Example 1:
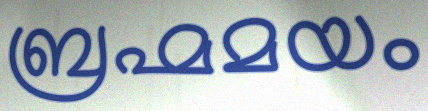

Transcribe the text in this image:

ബ്രഹ്മമയം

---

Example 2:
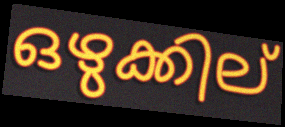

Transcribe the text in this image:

ഒഴുക്കില്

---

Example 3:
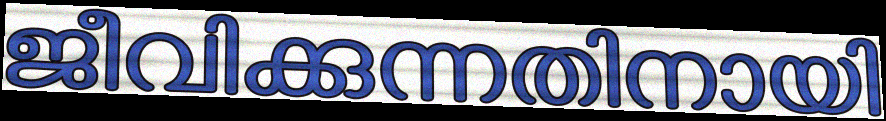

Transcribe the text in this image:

ജീവിക്കുന്നതിനായി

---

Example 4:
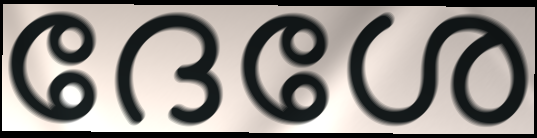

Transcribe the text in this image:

ദേശേ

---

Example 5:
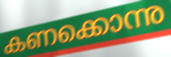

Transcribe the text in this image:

കണക്കൊന്നു